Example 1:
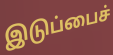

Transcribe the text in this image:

இடுப்பைச்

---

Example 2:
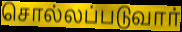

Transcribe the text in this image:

சொல்லப்படுவார்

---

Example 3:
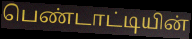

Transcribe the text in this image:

பெண்டாட்டியின்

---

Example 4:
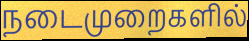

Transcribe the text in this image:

நடைமுறைகளில்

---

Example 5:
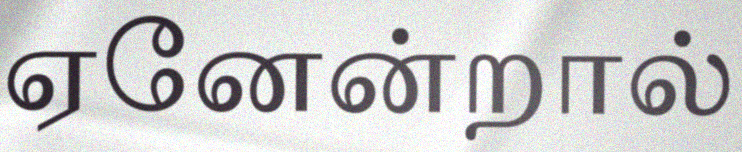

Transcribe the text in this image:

ஏனேன்றால்